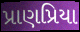
પ્રાણપ્રિયા